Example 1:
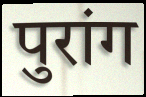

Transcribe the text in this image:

पुरांग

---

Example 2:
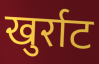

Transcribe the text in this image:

खुर्राट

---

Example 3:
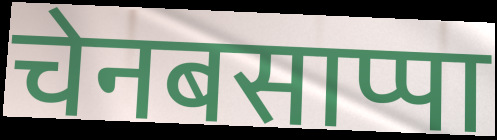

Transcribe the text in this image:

चेनबसाप्पा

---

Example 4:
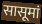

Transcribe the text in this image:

सासूमां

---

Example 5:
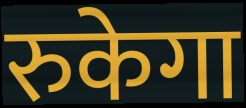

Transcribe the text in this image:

रुकेगा